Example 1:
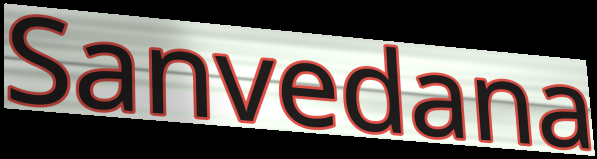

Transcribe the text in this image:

Sanvedana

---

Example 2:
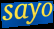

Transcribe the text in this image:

sayo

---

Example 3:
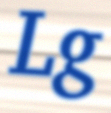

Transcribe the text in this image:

Lg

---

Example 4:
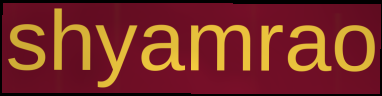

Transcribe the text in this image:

shyamrao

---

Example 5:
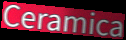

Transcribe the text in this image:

Ceramica